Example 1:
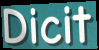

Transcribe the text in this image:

Dicit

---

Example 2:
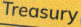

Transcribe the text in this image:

Treasury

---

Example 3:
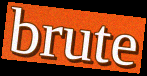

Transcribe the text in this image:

brute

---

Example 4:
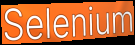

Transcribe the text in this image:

Selenium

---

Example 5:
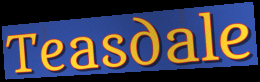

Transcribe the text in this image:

Teasdale